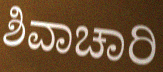
ಶಿವಾಚಾರಿ